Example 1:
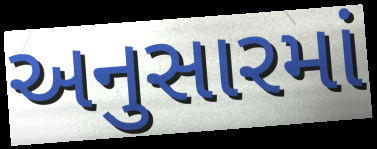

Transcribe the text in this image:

અનુસારમાં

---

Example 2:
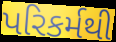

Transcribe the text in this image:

પરિકર્મથી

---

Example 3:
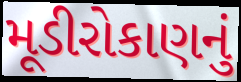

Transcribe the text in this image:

મૂડીરોકાણનું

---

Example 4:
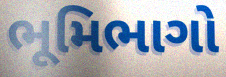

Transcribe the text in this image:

ભૂમિભાગો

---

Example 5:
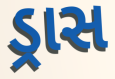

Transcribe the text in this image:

ડ્રાસ